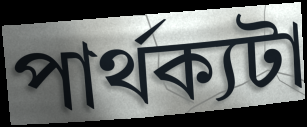
পার্থক্যটা